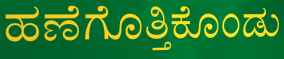
ಹಣೆಗೊತ್ತಿಕೊಂಡು